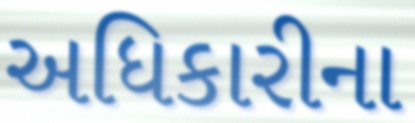
અધિકારીના